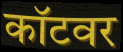
कॉटवर